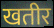
खतीर